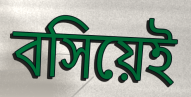
বসিয়েই